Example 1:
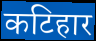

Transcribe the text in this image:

कटिहार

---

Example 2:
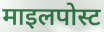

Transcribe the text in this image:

माइलपोस्ट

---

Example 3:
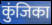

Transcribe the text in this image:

कुंजिका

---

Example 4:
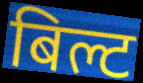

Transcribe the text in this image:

बिल्ट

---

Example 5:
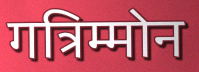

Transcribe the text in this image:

गत्रिम्मोन